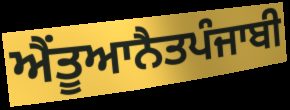
ਐਂਤੂਆਨੈਤਪੰਜਾਬੀ